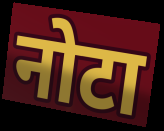
नोटा